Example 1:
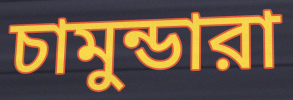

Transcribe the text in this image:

চামুন্ডারা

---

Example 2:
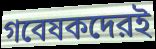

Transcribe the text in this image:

গবেষকদেরই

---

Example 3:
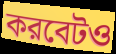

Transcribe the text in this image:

করবেটও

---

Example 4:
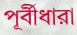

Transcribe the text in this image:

পূর্বীধারা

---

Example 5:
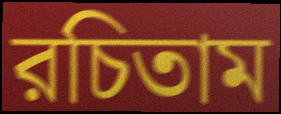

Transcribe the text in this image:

রচিতাম